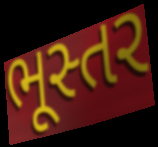
ભૂસ્તર